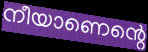
നീയാണെന്റെ